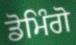
ਡੋਮਿੰਗੋ